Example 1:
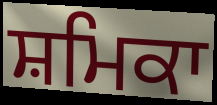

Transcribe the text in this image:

ਸ਼ਮਿਕਾ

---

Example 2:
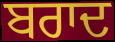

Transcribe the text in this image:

ਬਰਾਦ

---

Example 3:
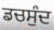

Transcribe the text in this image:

ਡਚਸੁੰਦ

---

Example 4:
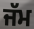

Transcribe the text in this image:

ਜੱਮ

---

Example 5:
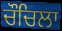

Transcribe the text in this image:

ਚੌਚਿਲਾ